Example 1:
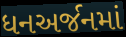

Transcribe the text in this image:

ધનઅર્જનમાં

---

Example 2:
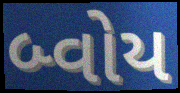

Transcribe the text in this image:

બ્વોય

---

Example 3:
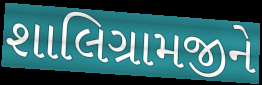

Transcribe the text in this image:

શાલિગ્રામજીને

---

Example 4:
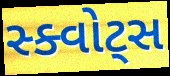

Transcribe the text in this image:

સ્ક્વોટ્સ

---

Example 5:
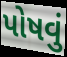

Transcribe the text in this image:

પોષવું